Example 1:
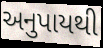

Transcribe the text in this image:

અનુપાયથી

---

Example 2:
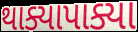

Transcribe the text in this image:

થાક્યાપાક્યા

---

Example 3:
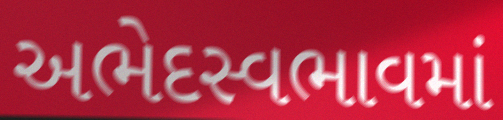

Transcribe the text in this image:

અભેદસ્વભાવમાં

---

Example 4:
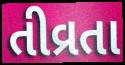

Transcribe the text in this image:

તીવ્રતા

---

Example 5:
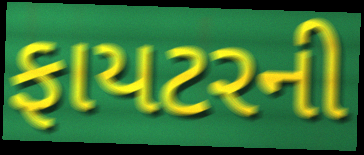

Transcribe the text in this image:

ફાયટરની